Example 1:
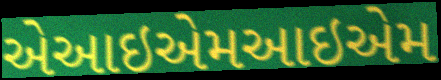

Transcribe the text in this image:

એઆઇએમઆઇએમ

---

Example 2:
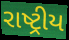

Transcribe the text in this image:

રાષ્ટ્રીય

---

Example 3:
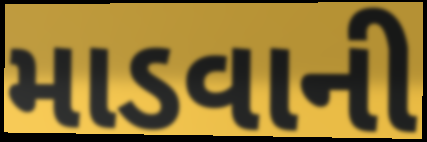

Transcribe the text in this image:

માડવાની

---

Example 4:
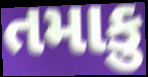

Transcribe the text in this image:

તમાકુ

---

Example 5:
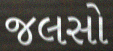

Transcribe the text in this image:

જલસો